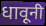
धावूनी